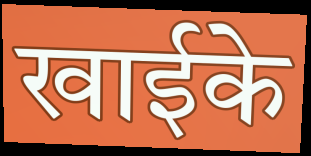
खाईके